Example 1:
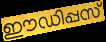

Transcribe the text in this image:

ഈഡിപ്പസ്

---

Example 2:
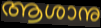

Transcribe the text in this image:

ആശാനു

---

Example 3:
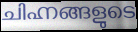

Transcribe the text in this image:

ചിഹ്നങ്ങളുടെ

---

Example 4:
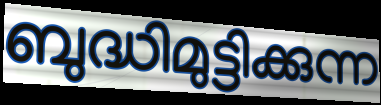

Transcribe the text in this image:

ബുദ്ധിമുട്ടിക്കുന്ന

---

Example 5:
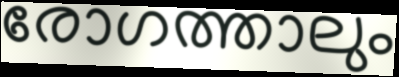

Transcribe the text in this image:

രോഗത്താലും